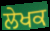
ਲੇਖਕ